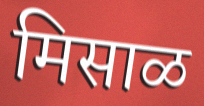
मिसाळ